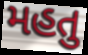
મહતુ